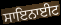
ਸਾਇਨਾਈਟ